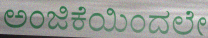
ಅಂಜಿಕೆಯಿಂದಲೇ